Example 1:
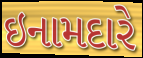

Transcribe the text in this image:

ઇનામદારે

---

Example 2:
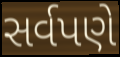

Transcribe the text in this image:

સર્વપણે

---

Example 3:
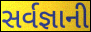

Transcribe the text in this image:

સર્વજ્ઞાની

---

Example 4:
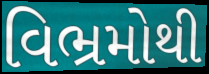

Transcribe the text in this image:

વિભ્રમોથી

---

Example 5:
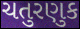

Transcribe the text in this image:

ચતુરણુક